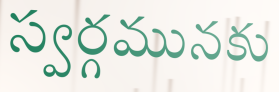
స్వర్గమునకు